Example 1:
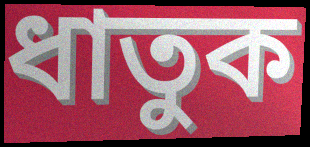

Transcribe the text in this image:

ধাতুক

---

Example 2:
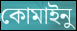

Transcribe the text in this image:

কোমাইনু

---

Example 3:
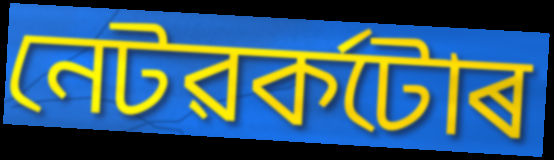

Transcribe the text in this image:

নেটৱৰ্কটোৰ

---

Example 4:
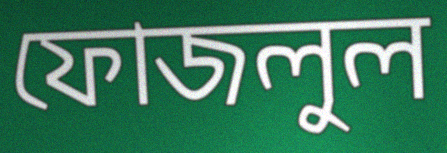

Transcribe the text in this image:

ফোজলুল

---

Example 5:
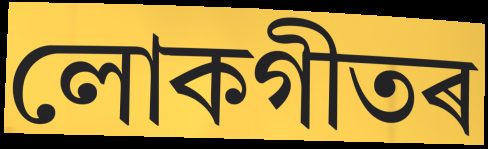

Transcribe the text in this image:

লোকগীতৰ